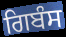
ਗਿਬੰਸ